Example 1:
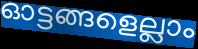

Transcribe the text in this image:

ഓട്ടങ്ങളെല്ലാം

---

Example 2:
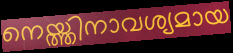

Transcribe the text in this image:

നെയ്ത്തിനാവശ്യമായ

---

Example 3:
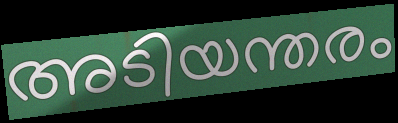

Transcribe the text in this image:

അടിയന്തരം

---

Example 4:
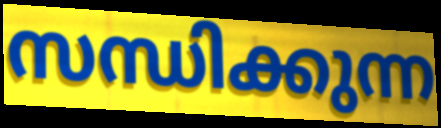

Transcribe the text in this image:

സന്ധിക്കുന്ന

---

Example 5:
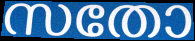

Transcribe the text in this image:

സതോ